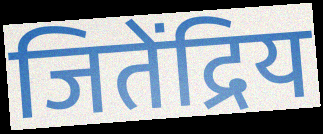
जितेंद्रिय